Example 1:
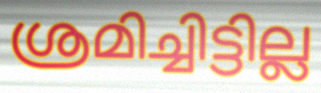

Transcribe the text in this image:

ശ്രമിച്ചിട്ടില്ല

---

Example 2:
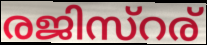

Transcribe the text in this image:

രജിസ്റര്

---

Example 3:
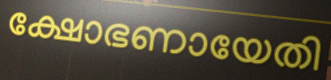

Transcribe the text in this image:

ക്ഷോഭണായേതി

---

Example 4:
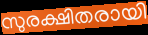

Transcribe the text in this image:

സുരക്ഷിതരായി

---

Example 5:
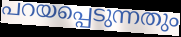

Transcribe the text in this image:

പറയപ്പെടുന്നതും